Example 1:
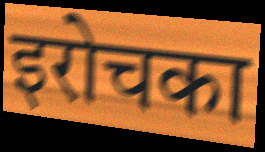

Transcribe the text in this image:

इरोचका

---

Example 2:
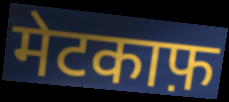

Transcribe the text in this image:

मेटकाफ़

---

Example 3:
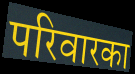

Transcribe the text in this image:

परिवारका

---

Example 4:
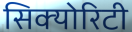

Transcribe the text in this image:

सिक्‍योरिटी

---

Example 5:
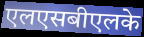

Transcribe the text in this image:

एलएसबीएलके